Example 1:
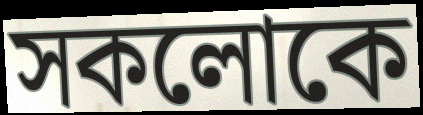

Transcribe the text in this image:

সকলোকে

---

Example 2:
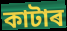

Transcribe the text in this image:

কাটাৰ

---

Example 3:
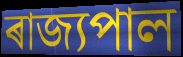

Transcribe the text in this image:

ৰাজ্যপাল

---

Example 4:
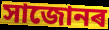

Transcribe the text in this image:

সাজোনৰ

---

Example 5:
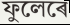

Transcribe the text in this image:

ফুলেৰে